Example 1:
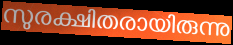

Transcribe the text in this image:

സുരക്ഷിതരായിരുന്നു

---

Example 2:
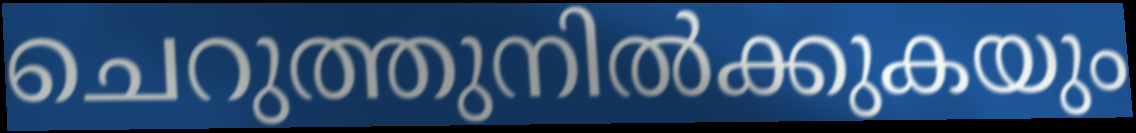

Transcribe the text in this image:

ചെറുത്തുനിൽക്കുകയും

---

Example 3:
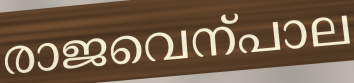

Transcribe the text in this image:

രാജവെന്പാല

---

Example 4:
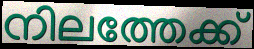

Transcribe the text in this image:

നിലത്തേക്ക്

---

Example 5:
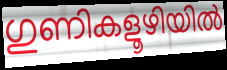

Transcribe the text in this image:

ഗുണികളൂഴിയിൽ